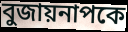
বুজায়নাপকে